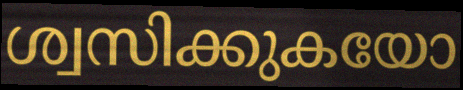
ശ്വസിക്കുകയോ